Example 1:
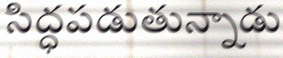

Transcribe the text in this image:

సిద్ధపడుతున్నాడు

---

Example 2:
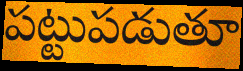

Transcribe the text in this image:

పట్టుపడుతూ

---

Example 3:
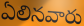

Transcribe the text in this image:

ఏలినవారు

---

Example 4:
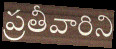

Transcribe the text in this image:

ప్రతీవారిని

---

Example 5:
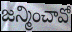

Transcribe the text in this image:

జన్మించావో